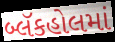
બ્લૅકહોલમાં